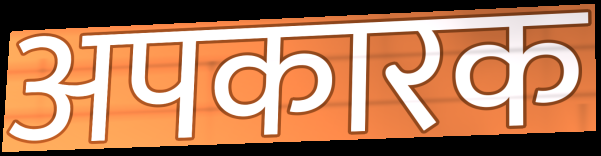
अपकारक